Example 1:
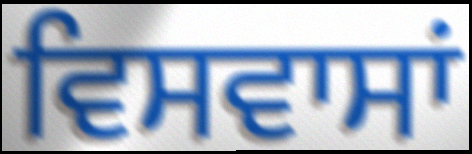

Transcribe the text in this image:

ਵਿਸਵਾਸਾਂ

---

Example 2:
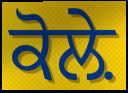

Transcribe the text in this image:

ਕੋਲ਼ੇ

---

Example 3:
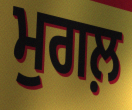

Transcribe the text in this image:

ਮੁਗਲ਼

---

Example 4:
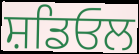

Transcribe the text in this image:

ਸ਼ਡਿਓਲ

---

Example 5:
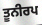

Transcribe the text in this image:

ਤੂਨੀਰਪ